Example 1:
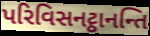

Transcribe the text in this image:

પરિવિસનટ્ઠાનન્તિ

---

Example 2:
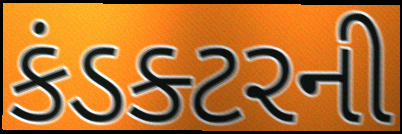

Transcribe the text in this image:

કંડક્ટરની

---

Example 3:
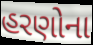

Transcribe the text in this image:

હરણોના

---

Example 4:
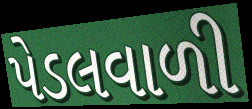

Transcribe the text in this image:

પેડલવાળી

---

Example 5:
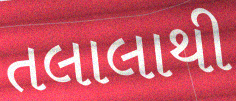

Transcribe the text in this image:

તલાલાથી